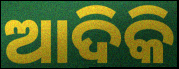
ଆଦିକି